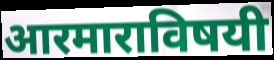
आरमाराविषयी